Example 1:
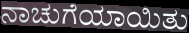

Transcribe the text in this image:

ನಾಚುಗೆಯಾಯಿತು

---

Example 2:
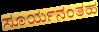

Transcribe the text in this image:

ಸೂರ್ಯನಂತಹ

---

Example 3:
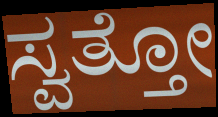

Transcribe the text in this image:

ಸ್ವತ್ತೋ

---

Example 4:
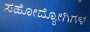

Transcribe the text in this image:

ಸಹೋದ್ಯೋಗಿಗಳ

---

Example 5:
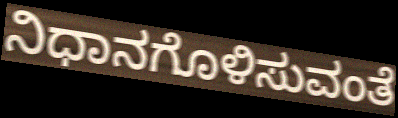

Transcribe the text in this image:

ನಿಧಾನಗೊಳಿಸುವಂತೆ